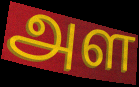
அள